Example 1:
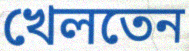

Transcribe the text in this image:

খেলতেন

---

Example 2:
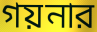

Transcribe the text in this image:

গয়নার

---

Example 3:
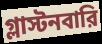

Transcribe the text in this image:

গ্লাস্টনবারি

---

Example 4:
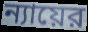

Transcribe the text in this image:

ন্যায়ের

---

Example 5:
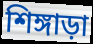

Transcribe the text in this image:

শিঙ্গাড়া